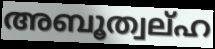
അബൂത്വല്ഹ